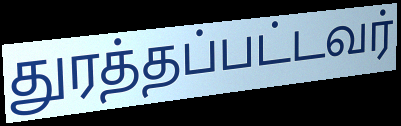
துரத்தப்பட்டவர்